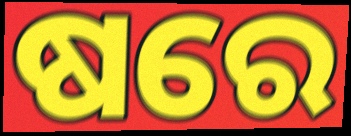
ଷରେ